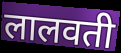
लालवती